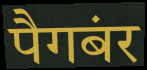
पैगबंर